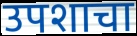
उपशाचा